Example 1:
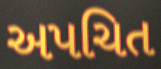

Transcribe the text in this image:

અપચિત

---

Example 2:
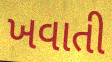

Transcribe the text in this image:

ખવાતી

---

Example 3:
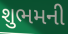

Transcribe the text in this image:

શુભમની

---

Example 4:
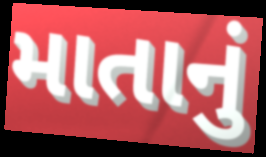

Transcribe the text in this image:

માતાનું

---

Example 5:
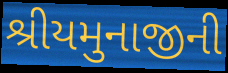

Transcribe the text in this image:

શ્રીયમુનાજીની